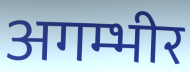
अगम्भीर